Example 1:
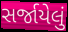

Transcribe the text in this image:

સર્જાયેલું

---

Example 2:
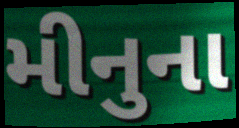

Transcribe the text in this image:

મીનુના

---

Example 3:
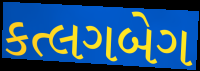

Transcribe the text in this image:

કત્લગબેગ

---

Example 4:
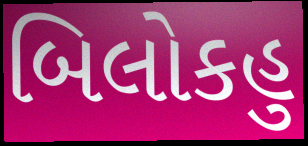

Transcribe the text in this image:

બિલોકહુ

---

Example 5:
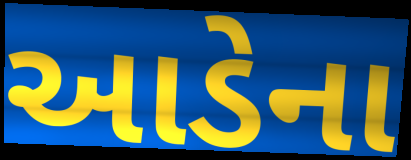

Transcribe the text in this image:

આડેના